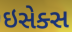
ઇસેક્સ